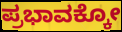
ಪ್ರಭಾವಕ್ಕೋ